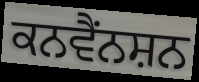
ਕਨਵੈਂਨਸ਼ਨ